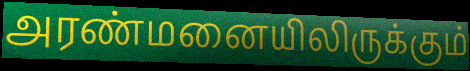
அரண்மனையிலிருக்கும்